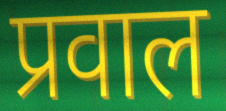
प्रवाल